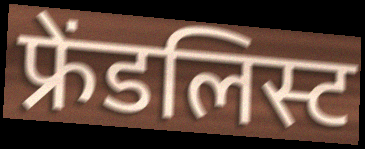
फ्रेंडलिस्ट